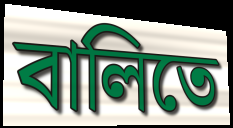
বালিতে